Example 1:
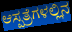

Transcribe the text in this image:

ಆಸ್ಪತ್ರೆಗಳಲ್ಲಿನ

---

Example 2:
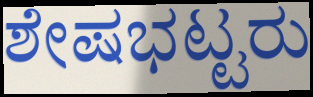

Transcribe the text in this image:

ಶೇಷಭಟ್ಟರು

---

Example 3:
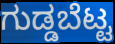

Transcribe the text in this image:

ಗುಡ್ಡಬೆಟ್ಟ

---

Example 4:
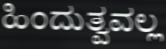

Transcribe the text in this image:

ಹಿಂದುತ್ವವಲ್ಲ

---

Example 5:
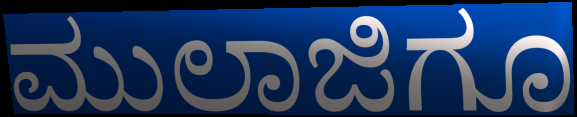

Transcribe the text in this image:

ಮುಲಾಜಿಗೂ